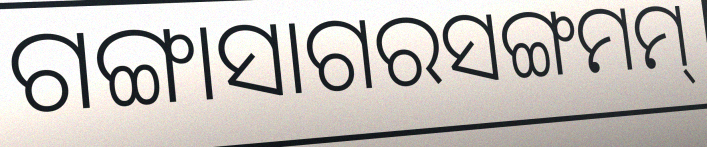
ଗଙ୍ଗାସାଗରସଙ୍ଗମମ୍